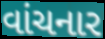
વાંચનાર